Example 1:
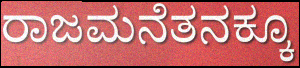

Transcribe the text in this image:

ರಾಜಮನೆತನಕ್ಕೂ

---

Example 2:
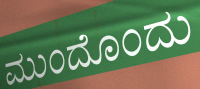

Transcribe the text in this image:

ಮುಂದೊಂದು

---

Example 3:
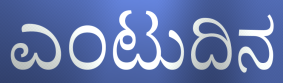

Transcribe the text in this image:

ಎಂಟುದಿನ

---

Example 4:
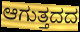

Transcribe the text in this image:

ಆಗುತ್ತದದ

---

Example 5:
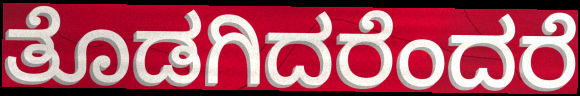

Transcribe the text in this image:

ತೊಡಗಿದರೆಂದರೆ